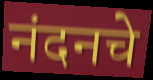
नंदनचे